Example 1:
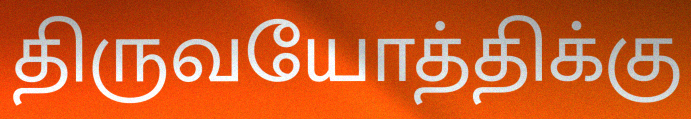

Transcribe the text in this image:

திருவயோத்திக்கு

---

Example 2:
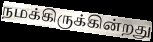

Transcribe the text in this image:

நமக்கிருக்கின்றது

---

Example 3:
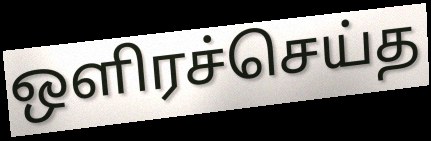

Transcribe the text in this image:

ஒளிரச்செய்த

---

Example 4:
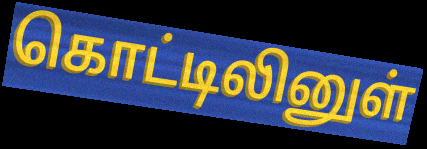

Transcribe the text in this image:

கொட்டிலினுள்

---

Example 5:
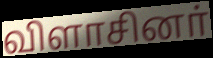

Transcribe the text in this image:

விளாசினர்